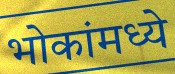
भोकांमध्ये